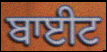
ਬਾਈਟ